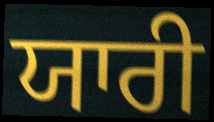
ਯਾਰੀ